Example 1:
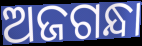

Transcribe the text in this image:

ଅଜଗନ୍ଧା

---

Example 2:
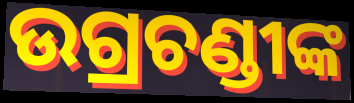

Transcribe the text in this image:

ଉଗ୍ରଚଣ୍ଡୀଙ୍କ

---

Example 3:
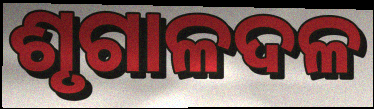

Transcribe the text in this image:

ଶୃଗାଳଦଳ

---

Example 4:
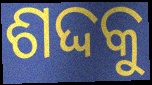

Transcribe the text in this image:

ଶଦ୍ଦକୁ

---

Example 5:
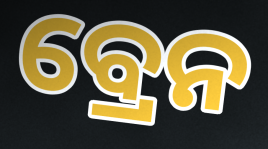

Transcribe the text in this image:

ବ୍ରେନ